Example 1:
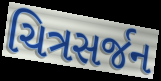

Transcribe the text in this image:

ચિત્રસર્જન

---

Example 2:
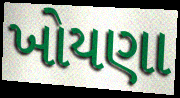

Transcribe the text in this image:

ખોયણા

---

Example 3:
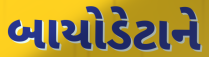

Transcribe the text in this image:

બાયોડેટાને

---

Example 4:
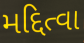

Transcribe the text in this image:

મદ્દિત્વા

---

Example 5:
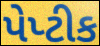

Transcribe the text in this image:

પેપ્ટીક